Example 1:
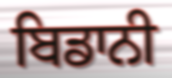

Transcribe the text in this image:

ਬਿਡਾਨੀ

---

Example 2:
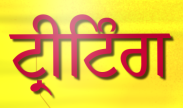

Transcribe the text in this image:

ਟ੍ਰੀਟਿੰਗ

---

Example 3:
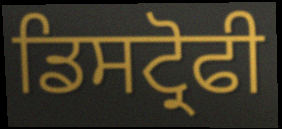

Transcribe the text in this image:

ਡਿਸਟ੍ਰੋਫੀ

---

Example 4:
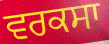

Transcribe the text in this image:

ਵਰਕਸਾ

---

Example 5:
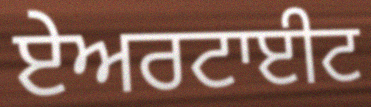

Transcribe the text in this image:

ਏਅਰਟਾਈਟ